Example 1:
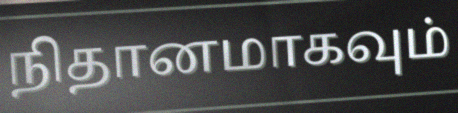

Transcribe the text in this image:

நிதானமாகவும்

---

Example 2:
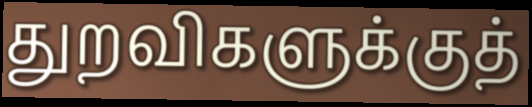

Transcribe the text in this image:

துறவிகளுக்குத்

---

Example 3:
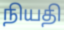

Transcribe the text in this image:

நியதி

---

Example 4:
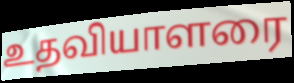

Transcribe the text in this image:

உதவியாளரை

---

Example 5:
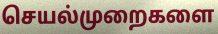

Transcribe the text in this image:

செயல்முறைகளை